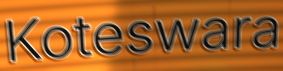
Koteswara